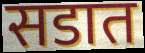
सडात